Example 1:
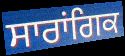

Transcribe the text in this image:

ਸਾਰਾਂਗਿਕ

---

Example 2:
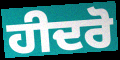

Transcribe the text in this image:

ਹੀਦਰੋ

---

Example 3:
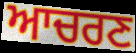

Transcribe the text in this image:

ਆਚਰਣ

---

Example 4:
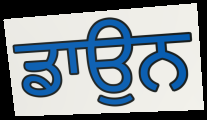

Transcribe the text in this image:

ਡਾਉਨ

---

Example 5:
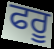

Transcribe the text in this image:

ਫਰੂ